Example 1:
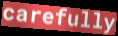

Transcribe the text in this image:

carefully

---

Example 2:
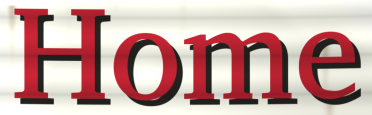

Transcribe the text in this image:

Home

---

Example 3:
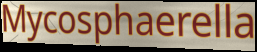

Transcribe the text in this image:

Mycosphaerella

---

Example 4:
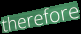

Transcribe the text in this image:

therefore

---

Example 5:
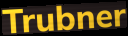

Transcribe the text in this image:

Trubner